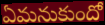
ఏమనుకుందో